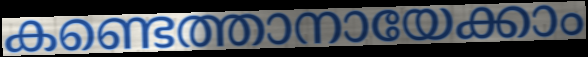
കണ്ടെത്താനായേക്കാം